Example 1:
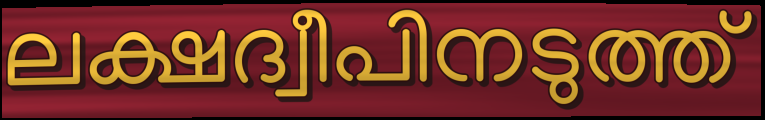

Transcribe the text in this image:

ലക്ഷദ്വീപിനടുത്ത്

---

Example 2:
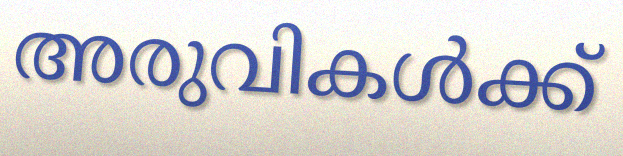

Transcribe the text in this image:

അരുവികൾക്ക്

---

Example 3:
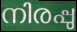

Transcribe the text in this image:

നിരപ്പു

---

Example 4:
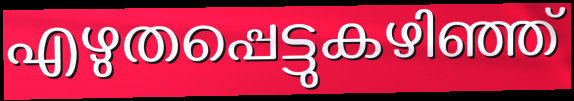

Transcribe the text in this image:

എഴുതപ്പെട്ടുകഴിഞ്ഞ്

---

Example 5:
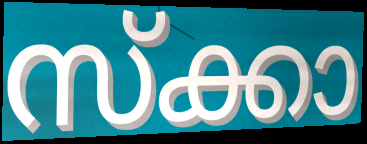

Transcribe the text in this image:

സ്ക്കാ